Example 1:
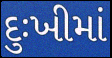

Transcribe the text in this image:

દુઃખીમાં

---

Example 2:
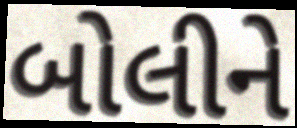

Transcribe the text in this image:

બોલીને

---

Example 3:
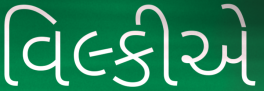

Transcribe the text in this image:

વિલ્કીએ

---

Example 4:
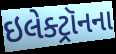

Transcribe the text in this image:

ઇલેક્ટ્રૉનના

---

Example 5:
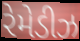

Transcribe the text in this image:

રેમેડીઝ